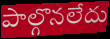
పాల్గొనలేదు